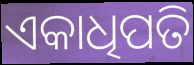
ଏକାଧିପତି